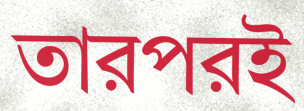
তারপরই